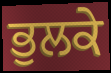
ਭੁਲਕੇ